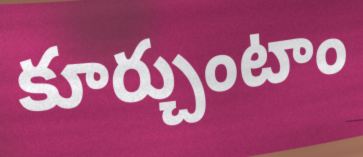
కూర్చుంటాం